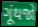
ગૂંથજો